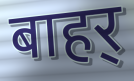
बाहर्